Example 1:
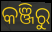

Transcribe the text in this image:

କଞ୍ଜିରୁ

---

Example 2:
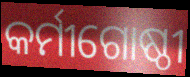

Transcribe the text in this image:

କର୍ମୀଗୋଷ୍ଠୀ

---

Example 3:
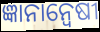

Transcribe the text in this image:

ଜ୍ଞାନାନ୍ୱେଷୀ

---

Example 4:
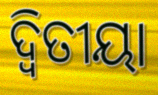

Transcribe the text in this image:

ଦ୍ଵିତୀୟା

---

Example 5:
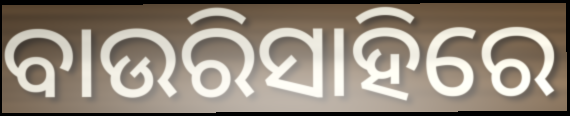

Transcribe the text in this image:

ବାଉରିସାହିରେ